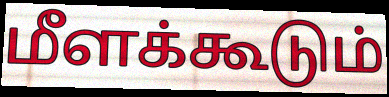
மீளக்கூடும்